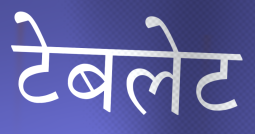
टेबलेट